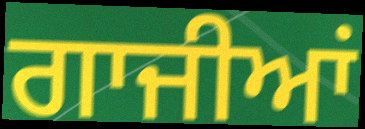
ਗਾਜੀਆਂ